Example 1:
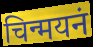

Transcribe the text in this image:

चिन्मयनं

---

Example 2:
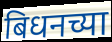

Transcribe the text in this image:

बिधनच्या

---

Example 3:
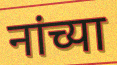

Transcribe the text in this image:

नांच्या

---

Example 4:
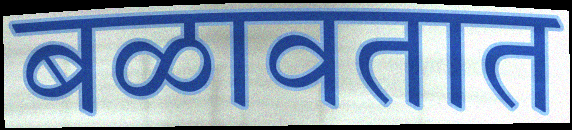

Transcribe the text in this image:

बळावतात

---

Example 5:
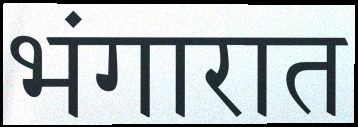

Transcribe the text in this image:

भंगारात